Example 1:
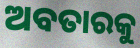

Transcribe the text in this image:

ଅବତାରକୁ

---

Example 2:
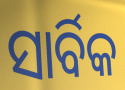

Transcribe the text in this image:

ସାର୍ବିକ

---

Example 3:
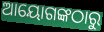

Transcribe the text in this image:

ଆୟୋଗଙ୍କଠାରୁ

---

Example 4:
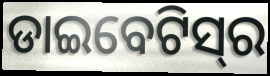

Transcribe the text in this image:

ଡାଇବେଟିସ୍‌ର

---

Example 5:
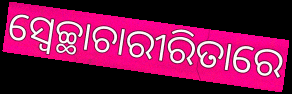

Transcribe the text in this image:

ସ୍ଵେଚ୍ଛାଚାରୀରିତାରେ